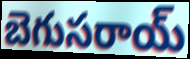
బెగుసరాయ్